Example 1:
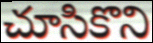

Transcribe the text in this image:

చూసికొని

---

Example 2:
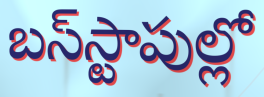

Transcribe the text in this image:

బస్‌స్టాపుల్లో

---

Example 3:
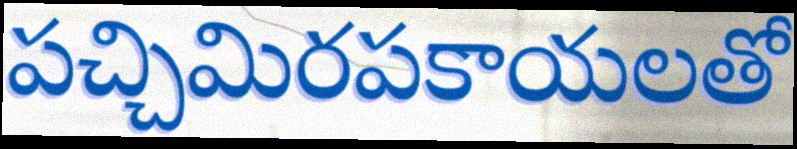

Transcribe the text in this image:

పచ్చిమిరపకాయలతో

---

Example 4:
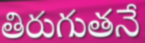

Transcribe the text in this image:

తిరుగుతనే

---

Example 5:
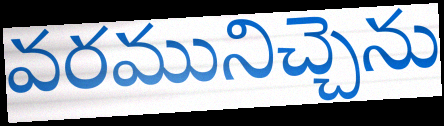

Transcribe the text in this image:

వరమునిచ్చెను